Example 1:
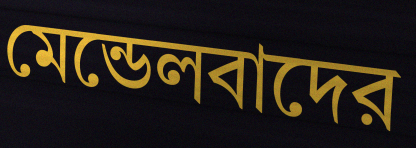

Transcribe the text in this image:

মেন্ডেলবাদের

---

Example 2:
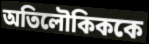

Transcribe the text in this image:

অতিলৌকিককে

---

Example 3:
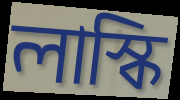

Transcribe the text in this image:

লাস্কি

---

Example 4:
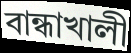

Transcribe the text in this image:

বান্ধাখালী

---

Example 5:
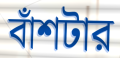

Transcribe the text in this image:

বাঁশটার